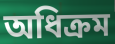
অধিক্রম